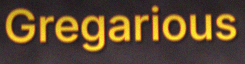
Gregarious